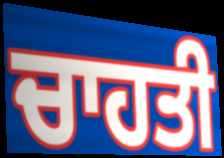
ਚਾਹਤੀ